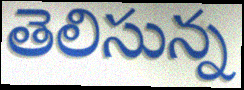
తెలిసున్న